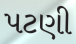
પટણી